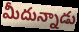
మీదున్నాడు